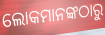
ଲୋକମାନଙ୍କଠାରୁ